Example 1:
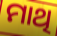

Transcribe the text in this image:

ମାଥି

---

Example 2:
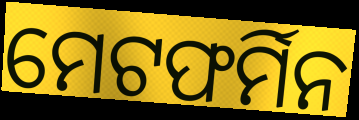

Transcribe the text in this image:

ମେଟଫର୍ମିନ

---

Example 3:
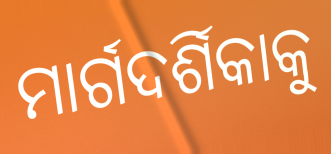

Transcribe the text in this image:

ମାର୍ଗଦର୍ଶିକାକୁ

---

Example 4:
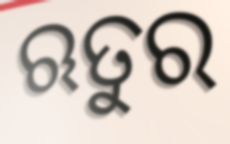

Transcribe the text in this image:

ଋତୁର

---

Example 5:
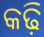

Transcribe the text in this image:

କଢ଼ି